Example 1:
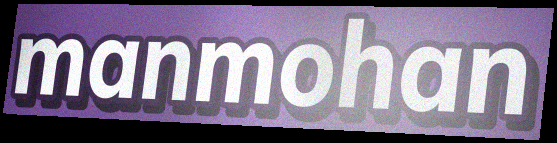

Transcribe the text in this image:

manmohan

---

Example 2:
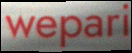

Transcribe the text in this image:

wepari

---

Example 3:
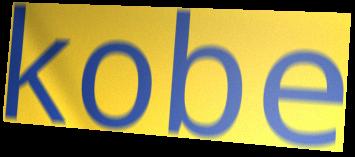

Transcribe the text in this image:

kobe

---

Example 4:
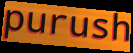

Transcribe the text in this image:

purush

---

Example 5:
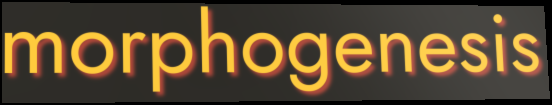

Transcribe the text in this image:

morphogenesis